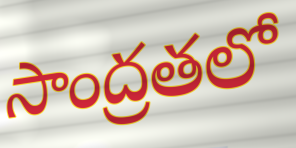
సాంద్రతలో